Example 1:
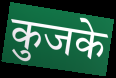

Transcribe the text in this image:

कुजके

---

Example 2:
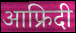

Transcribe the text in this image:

आफ्रिदी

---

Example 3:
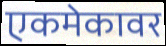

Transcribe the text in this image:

एकमेकावर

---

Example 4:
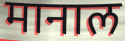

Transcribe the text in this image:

मानाल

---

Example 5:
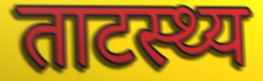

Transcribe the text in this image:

ताटस्थ्य